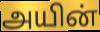
அயின்